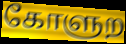
கோளுற